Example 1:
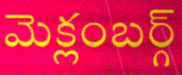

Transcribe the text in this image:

మెక్లంబర్గ్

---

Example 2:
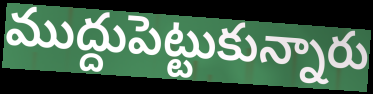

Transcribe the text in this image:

ముద్దుపెట్టుకున్నారు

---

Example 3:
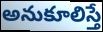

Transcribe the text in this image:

అనుకూలిస్తే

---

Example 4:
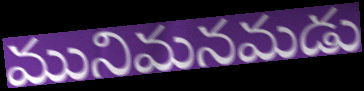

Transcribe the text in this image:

మునిమనమడు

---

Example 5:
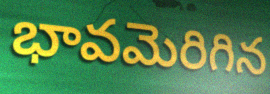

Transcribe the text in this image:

భావమెరిగిన